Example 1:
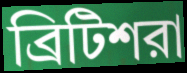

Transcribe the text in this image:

ব্রিটিশরা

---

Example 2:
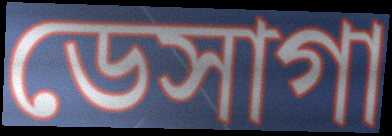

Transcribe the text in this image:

ডেসাগা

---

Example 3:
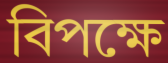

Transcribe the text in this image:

বিপক্ষে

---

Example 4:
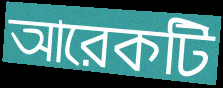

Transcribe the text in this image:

আরেকটি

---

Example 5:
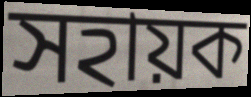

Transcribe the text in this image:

সহায়ক